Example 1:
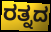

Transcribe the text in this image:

ರತ್ನದ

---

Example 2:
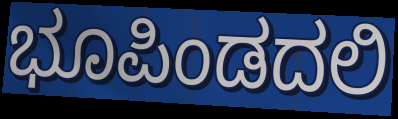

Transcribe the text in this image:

ಭೂಪಿಂಡದಲಿ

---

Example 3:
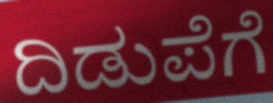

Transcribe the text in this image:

ದಿಡುಪೆಗೆ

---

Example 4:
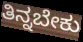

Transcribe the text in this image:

ತಿನ್ನಬೇಕು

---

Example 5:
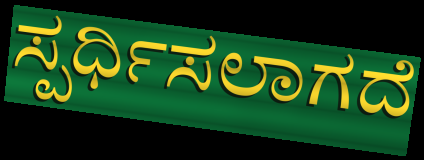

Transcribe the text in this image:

ಸ್ಪರ್ಧಿಸಲಾಗದೆ